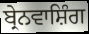
ਬ੍ਰੇਨਵਾਸ਼ਿੰਗ